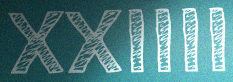
XXIIII